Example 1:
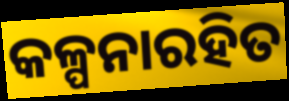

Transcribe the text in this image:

କଳ୍ପନାରହିତ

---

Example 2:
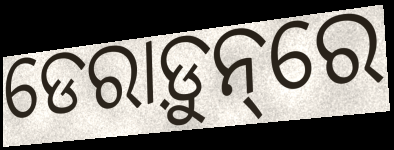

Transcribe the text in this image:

ଡେରାଡ଼ୁନ୍‌ରେ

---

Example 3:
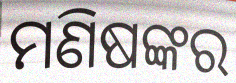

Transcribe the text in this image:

ମଣିଷଙ୍କର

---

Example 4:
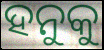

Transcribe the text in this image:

ହନୁକୁ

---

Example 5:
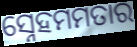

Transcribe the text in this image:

ସ୍ନେହମମତାର